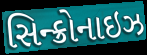
સિન્ક્રોનાઇઝ